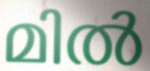
മിൽ